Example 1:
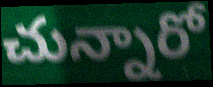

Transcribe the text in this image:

చున్నారో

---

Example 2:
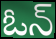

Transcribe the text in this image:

ఓన్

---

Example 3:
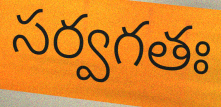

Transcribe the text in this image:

సర్వగతః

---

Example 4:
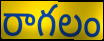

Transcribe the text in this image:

రాగలం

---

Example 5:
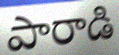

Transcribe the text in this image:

పారాడి